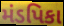
મંડપિકા